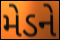
મેડને